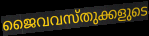
ജൈവവസ്തുക്കളുടെ